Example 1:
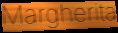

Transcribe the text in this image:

Margherita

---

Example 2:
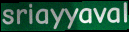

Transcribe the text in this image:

sriayyaval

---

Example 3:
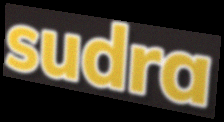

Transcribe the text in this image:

sudra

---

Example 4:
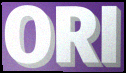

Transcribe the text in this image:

ORI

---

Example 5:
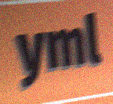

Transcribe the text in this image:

yml